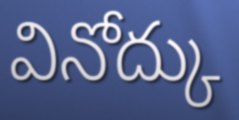
వినోద్కు